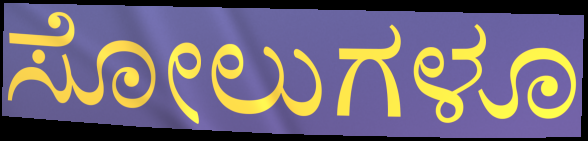
ಸೋಲುಗಳೂ